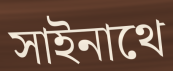
সাইনাথে